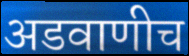
अडवाणीच